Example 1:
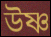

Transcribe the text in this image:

উষ্ণ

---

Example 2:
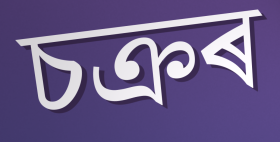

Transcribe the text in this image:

চক্ৰৰ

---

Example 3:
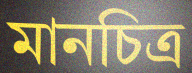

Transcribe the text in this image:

মানচিত্ৰ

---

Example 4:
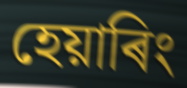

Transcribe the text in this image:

হেয়াৰিং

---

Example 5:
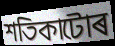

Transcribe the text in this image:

শতিকাটোৰ